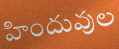
హిందువుల